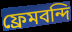
ফ্রেমবন্দি